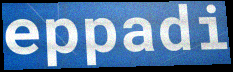
eppadi